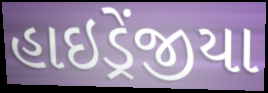
હાઇડ્રેંજીયા